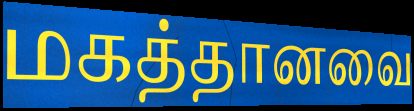
மகத்தானவை